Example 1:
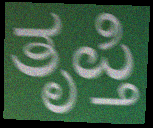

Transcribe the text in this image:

ತೃಪ್ತಿ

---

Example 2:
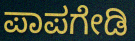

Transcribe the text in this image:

ಪಾಪಗೇಡಿ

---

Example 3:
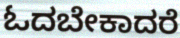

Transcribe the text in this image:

ಓದಬೇಕಾದರೆ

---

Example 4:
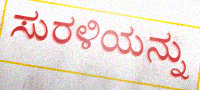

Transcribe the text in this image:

ಸುರಳಿಯನ್ನು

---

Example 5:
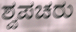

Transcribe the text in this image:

ಶ್ವಪಚರು